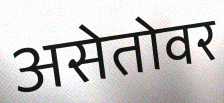
असेतोवर